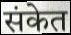
संकेत